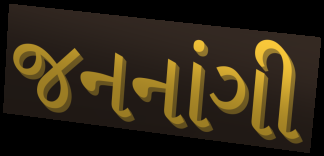
જનનાંગી